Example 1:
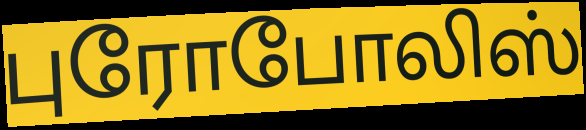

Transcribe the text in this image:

புரோபோலிஸ்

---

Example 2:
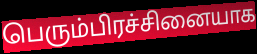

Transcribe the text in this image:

பெரும்பிரச்சினையாக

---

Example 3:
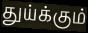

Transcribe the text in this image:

துய்க்கும்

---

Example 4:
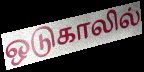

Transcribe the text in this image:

ஒடுகாலில்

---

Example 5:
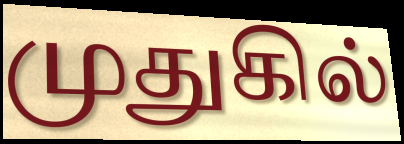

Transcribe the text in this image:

முதுகில்